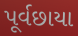
પૂર્વછાયા